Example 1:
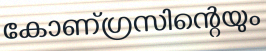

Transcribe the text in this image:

കോണ്ഗ്രസിന്റെയും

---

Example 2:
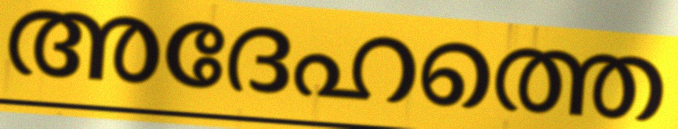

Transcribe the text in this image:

അദേഹത്തെ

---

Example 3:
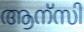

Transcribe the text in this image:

ആന്സി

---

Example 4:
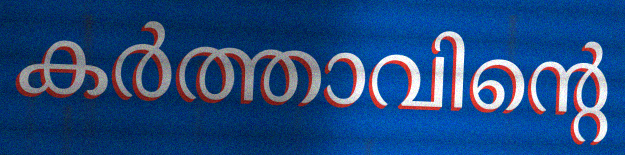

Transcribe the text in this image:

കർത്താവിന്റെ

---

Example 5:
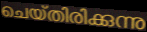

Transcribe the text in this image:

ചെയ്‌തിരിക്കുന്നു